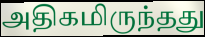
அதிகமிருந்தது